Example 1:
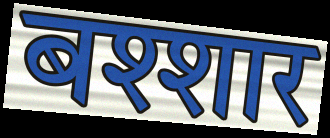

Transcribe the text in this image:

बश्शार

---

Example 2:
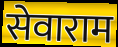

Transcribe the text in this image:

सेवाराम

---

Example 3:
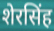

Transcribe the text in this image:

शेरसिंह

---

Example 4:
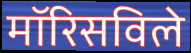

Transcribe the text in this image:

मॉरिसविले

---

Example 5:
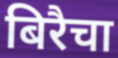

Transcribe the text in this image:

बिरैचा